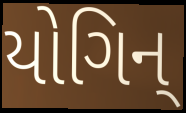
યોગિન્